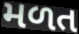
મળત